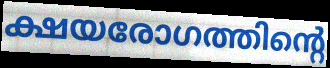
ക്ഷയരോഗത്തിന്റെ